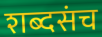
शब्दसंच